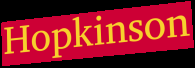
Hopkinson